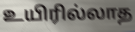
உயிரில்லாத